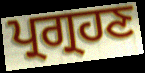
ਪ੍ਰਗ੍ਰਹਣ